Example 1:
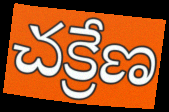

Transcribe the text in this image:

చక్రేణ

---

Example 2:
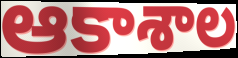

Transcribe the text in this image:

ఆకాశాల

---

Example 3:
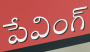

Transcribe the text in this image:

పేవింగ్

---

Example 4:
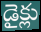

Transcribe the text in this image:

డైక్లు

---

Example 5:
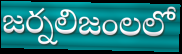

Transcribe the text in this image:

జర్నలిజంలలో